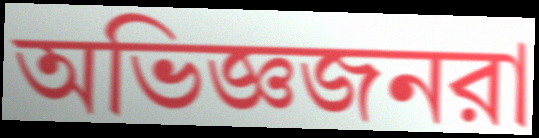
অভিজ্ঞজনরা